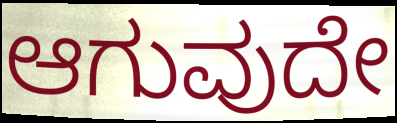
ಆಗುವುದೇ